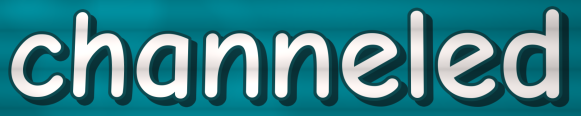
channeled